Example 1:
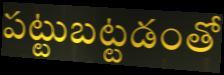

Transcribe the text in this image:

పట్టుబట్టడంతో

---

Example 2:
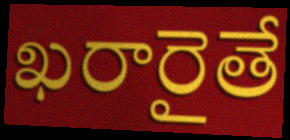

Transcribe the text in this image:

ఖరారైతే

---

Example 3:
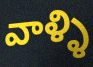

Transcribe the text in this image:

వాళ్ళి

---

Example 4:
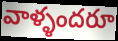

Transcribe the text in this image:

వాళ్ళందరూ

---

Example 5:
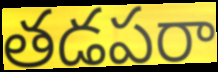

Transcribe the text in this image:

తడపరా